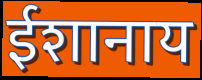
ईशानाय